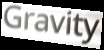
Gravity